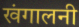
खंगालनी